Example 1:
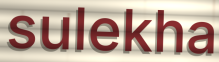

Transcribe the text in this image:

sulekha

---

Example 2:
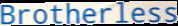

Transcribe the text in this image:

Brotherless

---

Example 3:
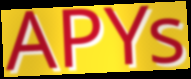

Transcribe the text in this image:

APYs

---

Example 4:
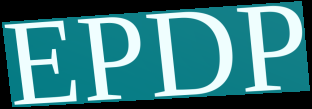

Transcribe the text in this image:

EPDP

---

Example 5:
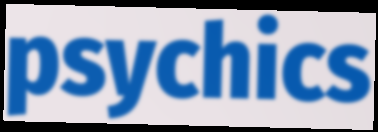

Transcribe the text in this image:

psychics